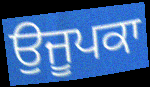
ਉਜੂਪਕਾ